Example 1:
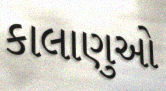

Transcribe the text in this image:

કાલાણુઓ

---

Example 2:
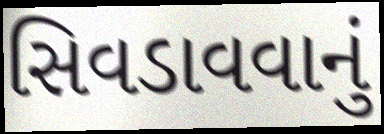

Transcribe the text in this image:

સિવડાવવાનું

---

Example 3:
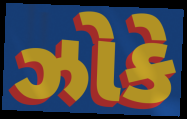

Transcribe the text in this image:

ઝોકે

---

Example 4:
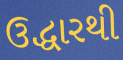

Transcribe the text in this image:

ઉદ્ધારથી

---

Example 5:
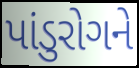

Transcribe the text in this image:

પાંડુરોગને